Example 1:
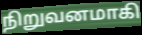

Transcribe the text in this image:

நிறுவனமாகி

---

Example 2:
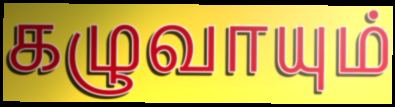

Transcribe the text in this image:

கழுவாயும்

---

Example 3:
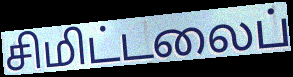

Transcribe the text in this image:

சிமிட்டலைப்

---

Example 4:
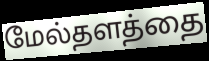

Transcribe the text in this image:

மேல்தளத்தை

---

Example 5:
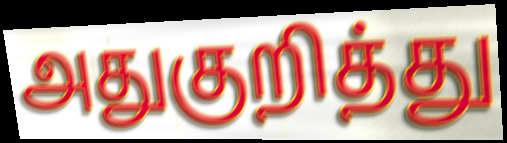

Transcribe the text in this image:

அதுகுறித்து